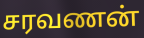
சரவணன்